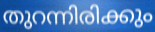
തുറന്നിരിക്കും